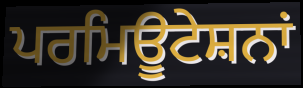
ਪਰਮਿਊਟੇਸ਼ਨਾਂ